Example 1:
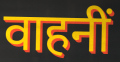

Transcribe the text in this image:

वाहनीं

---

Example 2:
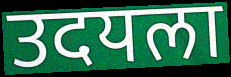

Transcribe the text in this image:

उदयला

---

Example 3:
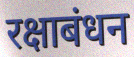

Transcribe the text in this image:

रक्षाबंधन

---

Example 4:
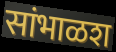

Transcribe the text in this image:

सांभाळश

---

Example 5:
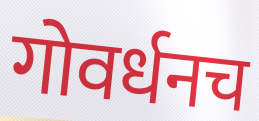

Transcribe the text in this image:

गोवर्धनच